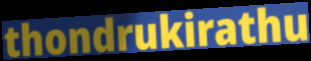
thondrukirathu